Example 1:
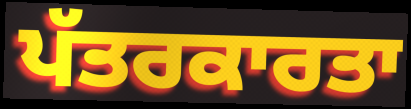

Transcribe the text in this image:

ਪੱਤਰਕਾਰਤਾ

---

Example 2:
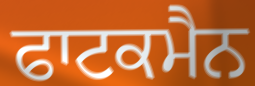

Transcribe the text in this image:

ਫਾਟਕਮੈਨ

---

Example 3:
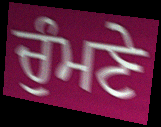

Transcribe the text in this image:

ਚੁੰਮਣੇ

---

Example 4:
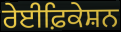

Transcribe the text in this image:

ਰੇਈਫ਼ਿਕੇਸ਼ਨ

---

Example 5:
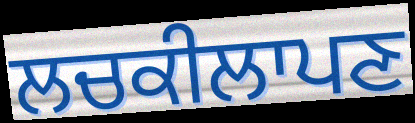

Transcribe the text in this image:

ਲਚਕੀਲਾਪਣ